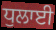
ਧੁਲਾਈ